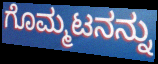
ಗೊಮ್ಮಟನನ್ನು